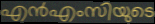
എൻഎംസിയുടെ